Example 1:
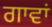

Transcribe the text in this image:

ਗਾਵਾਂ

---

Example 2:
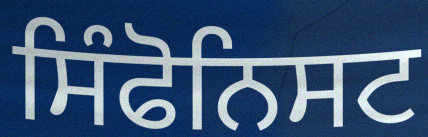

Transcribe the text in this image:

ਸਿੰਫੋਨਿਸਟ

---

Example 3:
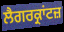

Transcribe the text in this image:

ਲੈਗਰਕ੍ਰਾਂਟਜ਼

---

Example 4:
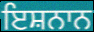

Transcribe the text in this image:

ਇਸ਼ਨਾਨ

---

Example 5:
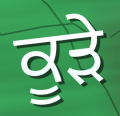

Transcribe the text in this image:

ਕੂੜੇ